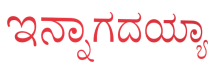
ಇನ್ನಾಗದಯ್ಯಾ